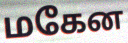
மகேன